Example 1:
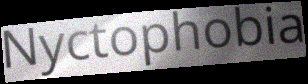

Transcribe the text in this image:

Nyctophobia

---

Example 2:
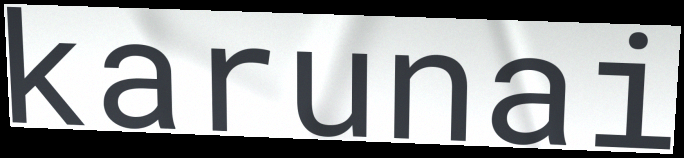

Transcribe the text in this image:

karunai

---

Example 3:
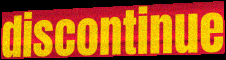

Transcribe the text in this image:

discontinue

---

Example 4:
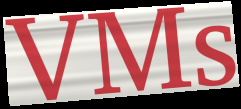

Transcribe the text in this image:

VMs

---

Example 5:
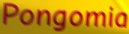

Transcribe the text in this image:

Pongomia